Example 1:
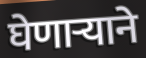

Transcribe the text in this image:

घेणाऱ्याने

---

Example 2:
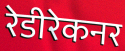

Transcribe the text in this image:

रेडीरेकनर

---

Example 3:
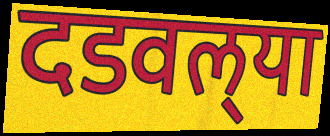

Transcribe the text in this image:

दडवल्या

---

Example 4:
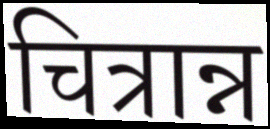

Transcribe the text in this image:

चित्रान्न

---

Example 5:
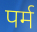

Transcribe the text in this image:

पर्म